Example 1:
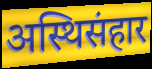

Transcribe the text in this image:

अस्थिसंहार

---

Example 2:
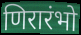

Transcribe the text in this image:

णिरारंभो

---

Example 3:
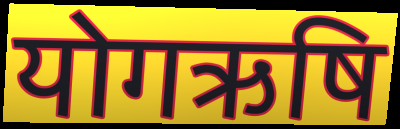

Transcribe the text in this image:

योगऋषि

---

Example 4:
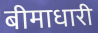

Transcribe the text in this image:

बीमाधारी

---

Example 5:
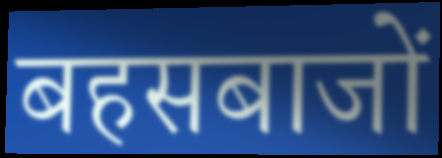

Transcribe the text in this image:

बहसबाजों